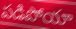
పడిపోయా